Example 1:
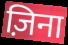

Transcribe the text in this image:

ज़िना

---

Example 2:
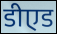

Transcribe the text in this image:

डीएड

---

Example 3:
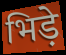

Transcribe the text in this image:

भिड़े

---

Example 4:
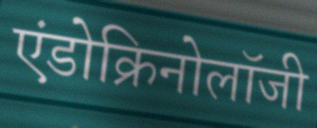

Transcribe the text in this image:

एंडोक्रिनोलॉजी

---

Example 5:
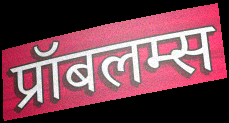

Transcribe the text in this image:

प्रॉबलम्स